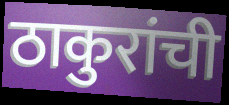
ठाकुरांची